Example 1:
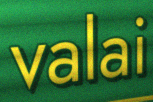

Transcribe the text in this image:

valai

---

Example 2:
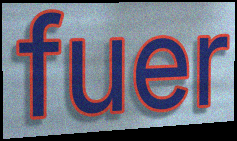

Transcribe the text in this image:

fuer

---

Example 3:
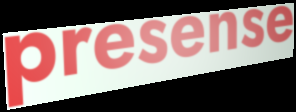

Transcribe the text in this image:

presense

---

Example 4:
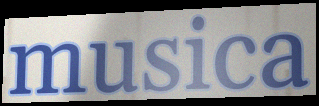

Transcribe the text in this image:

musica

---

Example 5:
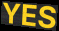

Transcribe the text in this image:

YES